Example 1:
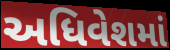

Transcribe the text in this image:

અધિવેશમાં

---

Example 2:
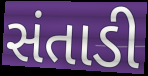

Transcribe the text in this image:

સંતાડી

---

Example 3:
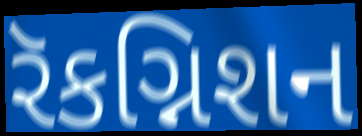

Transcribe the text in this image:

રૅકગ્નિશન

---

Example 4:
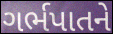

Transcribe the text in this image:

ગર્ભપાતને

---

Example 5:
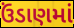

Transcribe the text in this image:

ઉંડાણમાં